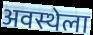
अवस्थेला